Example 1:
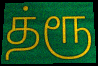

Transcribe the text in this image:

த்ரூ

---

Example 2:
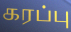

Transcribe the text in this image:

கரப்பு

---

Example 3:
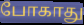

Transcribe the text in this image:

போகாது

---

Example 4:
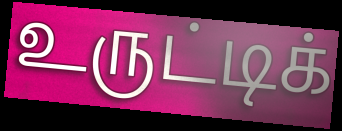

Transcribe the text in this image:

உருட்டிக்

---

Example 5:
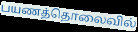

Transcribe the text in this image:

பயணத்தொலைவில்